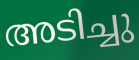
അടിച്ചു